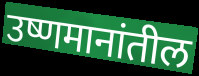
उष्णमानांतील